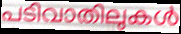
പടിവാതിലുകൾ